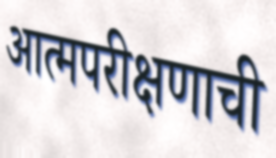
आत्मपरीक्षणाची